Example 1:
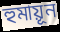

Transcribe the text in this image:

হুমায়ূন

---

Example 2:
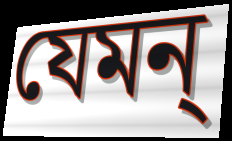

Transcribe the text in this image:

যেমন্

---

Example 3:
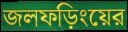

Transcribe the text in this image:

জলফড়িংয়ের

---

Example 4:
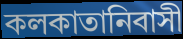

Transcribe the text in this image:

কলকাতানিবাসী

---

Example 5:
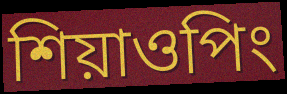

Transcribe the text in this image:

শিয়াওপিং